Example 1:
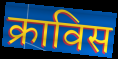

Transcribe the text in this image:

क्राविस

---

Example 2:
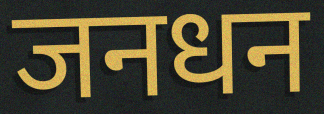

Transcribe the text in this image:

जनधन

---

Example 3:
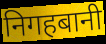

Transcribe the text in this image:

निगहबानी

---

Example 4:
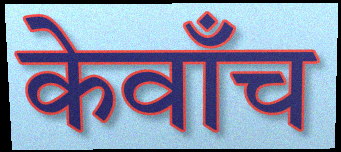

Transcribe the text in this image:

केवाँच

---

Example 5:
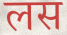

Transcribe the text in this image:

लस